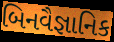
બિનવૈજ્ઞાનિક